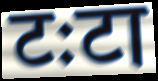
टःटा